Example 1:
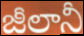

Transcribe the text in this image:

జీలానీ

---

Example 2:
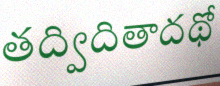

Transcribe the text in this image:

తద్విదితాదథో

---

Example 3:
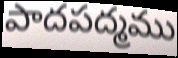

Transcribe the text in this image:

పాదపద్మము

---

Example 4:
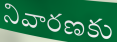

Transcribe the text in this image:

నివారణకు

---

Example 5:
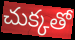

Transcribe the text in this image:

చుక్కతో